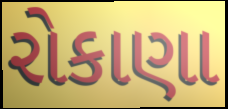
રોકાણા